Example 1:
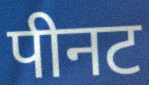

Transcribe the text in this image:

पीनट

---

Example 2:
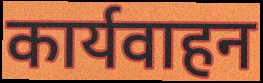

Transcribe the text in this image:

कार्यवाहन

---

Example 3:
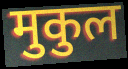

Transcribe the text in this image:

मुकुल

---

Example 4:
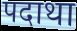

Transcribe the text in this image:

पदाथा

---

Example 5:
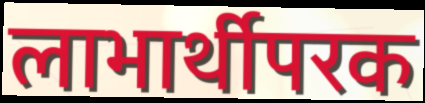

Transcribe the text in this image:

लाभार्थीपरक